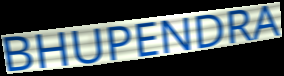
BHUPENDRA